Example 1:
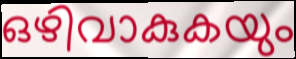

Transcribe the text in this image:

ഒഴിവാകുകയും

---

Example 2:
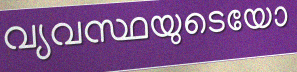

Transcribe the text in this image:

വ്യവസ്ഥയുടെയോ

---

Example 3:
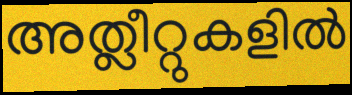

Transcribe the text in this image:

അത്ലീറ്റുകളിൽ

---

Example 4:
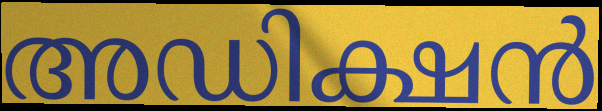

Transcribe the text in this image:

അഡിക്ഷൻ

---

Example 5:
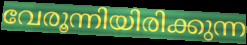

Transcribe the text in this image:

വേരൂന്നിയിരിക്കുന്ന